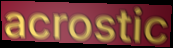
acrostic